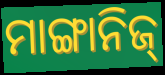
ମାଙ୍ଗାନିଜ୍